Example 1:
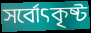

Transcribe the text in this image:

সৰ্বোৎকৃষ্ট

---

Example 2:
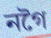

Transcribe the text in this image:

নগৈ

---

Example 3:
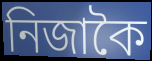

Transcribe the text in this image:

নিজাকৈ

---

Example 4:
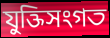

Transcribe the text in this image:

যুক্তিসংগত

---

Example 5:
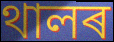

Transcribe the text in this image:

থালৰ